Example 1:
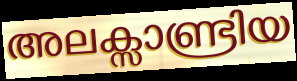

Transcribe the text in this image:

അലക്സാണ്ട്രിയ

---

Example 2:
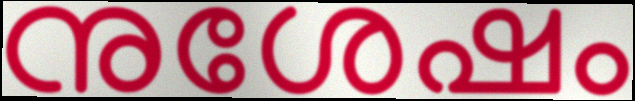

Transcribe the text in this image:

നുശേഷം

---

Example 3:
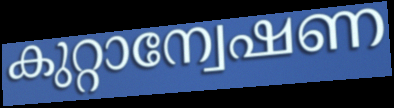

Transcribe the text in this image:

കുറ്റാന്വേഷണ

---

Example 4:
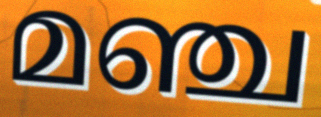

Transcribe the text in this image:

മഞ്ച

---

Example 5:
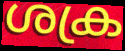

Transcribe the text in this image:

ശക്ര